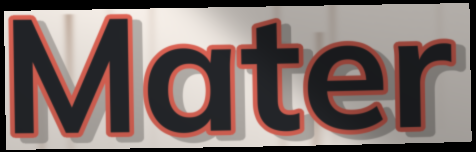
Mater